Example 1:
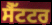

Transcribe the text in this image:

ਸੈੱਟਟਰ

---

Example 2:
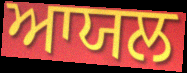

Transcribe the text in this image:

ਆਯਲ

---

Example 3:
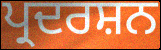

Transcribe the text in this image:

ਪ੍ਰਦਰਸ਼ਨ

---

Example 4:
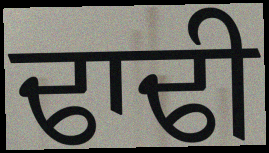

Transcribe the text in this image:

ਢਾਢੀ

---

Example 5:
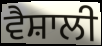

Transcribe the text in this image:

ਵੈਸ਼ਾਲੀ